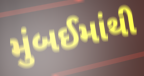
મુંબઈમાંથી